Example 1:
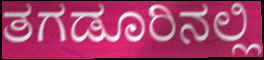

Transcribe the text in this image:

ತಗಡೂರಿನಲ್ಲಿ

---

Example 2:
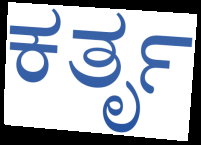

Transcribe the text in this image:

ಕರ್ತೃ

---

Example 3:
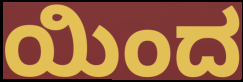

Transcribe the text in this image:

ಯಿಂದ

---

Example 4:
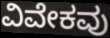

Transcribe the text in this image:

ವಿವೇಕವು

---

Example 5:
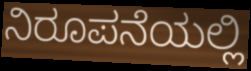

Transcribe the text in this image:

ನಿರೂಪನೆಯಲ್ಲಿ